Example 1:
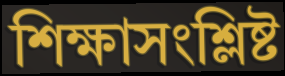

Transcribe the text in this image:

শিক্ষাসংশ্লিষ্ট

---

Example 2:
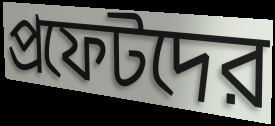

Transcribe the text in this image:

প্রফেটদের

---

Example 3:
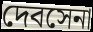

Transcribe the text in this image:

দেবসেনা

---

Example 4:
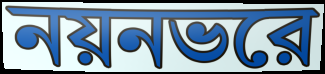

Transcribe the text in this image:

নয়নভরে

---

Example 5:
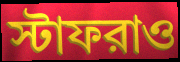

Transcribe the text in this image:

স্টাফরাও